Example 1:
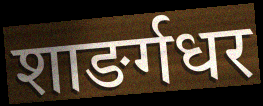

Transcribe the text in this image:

शाङर्गधर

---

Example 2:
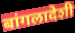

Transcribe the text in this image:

बांगलादेशी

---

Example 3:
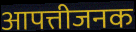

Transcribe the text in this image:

आपत्तीजनक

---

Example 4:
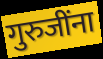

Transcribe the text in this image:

गुरुजींना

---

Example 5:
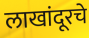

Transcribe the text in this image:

लाखांदूरचे